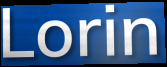
Lorin